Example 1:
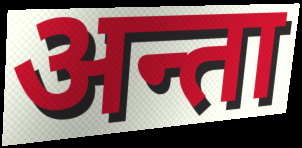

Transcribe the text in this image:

अन्ता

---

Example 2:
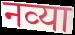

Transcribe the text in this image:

नव्‍या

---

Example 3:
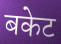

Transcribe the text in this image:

बकेट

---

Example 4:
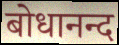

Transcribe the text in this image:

बोधानन्द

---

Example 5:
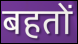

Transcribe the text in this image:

बहतों